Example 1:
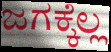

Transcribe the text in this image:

ಜಗಕ್ಕೆಲ್ಲ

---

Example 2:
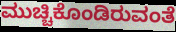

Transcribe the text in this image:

ಮುಚ್ಚಿಕೊಂಡಿರುವಂತೆ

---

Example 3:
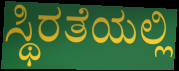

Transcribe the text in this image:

ಸ್ಥಿರತೆಯಲ್ಲಿ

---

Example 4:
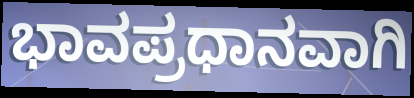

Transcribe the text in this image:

ಭಾವಪ್ರಧಾನವಾಗಿ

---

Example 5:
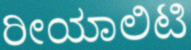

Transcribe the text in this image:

ರೀಯಾಲಿಟಿ